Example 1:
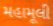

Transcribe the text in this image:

મહામૂલી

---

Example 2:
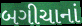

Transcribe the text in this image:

બગીચાનાં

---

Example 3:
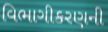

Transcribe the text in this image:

વિભાગીકરણની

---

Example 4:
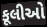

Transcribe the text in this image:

કૂલીઓ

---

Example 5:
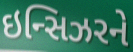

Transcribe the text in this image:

ઇન્સિઝરને